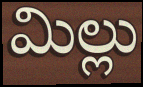
మిల్లు